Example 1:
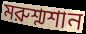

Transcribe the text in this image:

মরুশ্মশান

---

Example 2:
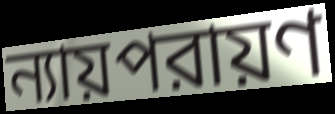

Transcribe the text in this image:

ন্যায়পরায়ণ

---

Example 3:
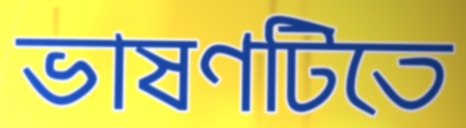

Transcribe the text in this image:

ভাষণটিতে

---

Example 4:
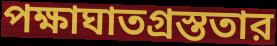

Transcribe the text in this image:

পক্ষাঘাতগ্রস্ততার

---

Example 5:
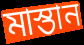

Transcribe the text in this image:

মাস্তান